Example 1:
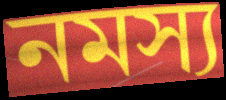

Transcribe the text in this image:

নমস্য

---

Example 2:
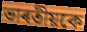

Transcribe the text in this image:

ভাৰতীয়কে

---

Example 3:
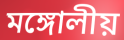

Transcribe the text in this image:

মঙ্গোলীয়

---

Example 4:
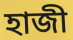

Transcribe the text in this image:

হাজী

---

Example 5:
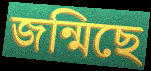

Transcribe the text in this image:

জন্মিছে